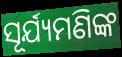
ସୂର୍ଯ୍ୟମଣିଙ୍କ